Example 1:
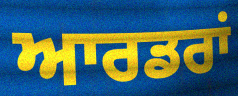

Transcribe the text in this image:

ਆਰਡਰਾਂ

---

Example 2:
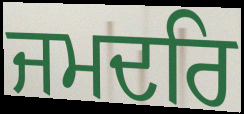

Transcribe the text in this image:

ਜਮਦਰਿ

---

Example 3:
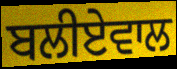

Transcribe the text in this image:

ਬਲੀਏਵਾਲ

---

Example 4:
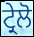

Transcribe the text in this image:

ਟ੍ਰੇਲੋ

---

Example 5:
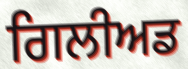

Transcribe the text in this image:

ਗਿਲੀਅਡ